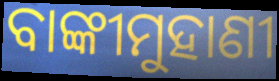
ବାଙ୍କୀମୁହାଣୀ